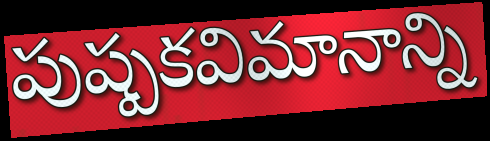
పుష్పకవిమానాన్ని